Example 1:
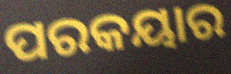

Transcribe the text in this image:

ପରକୟାର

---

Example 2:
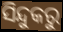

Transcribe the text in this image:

ସିନ୍ଦୁକରୁ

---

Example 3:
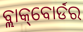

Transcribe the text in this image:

ବ୍ଲାକ୍‌ବୋର୍ଡର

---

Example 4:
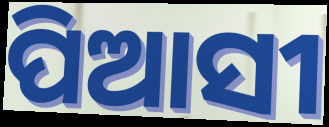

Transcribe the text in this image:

ପିଆସୀ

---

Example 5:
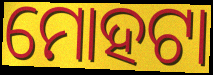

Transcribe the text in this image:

ମୋହଟା